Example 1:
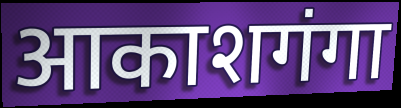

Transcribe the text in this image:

आकाशगंगा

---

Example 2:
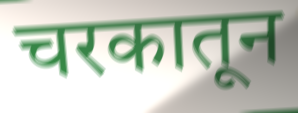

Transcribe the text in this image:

चरकातून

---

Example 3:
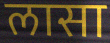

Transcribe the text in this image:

लासा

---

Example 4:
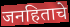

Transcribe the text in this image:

जनहिताचे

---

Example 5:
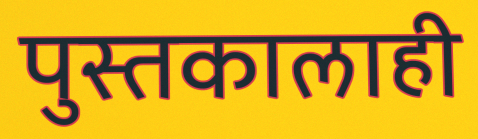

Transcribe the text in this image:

पुस्तकालाही